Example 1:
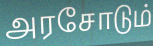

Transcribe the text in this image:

அரசோடும்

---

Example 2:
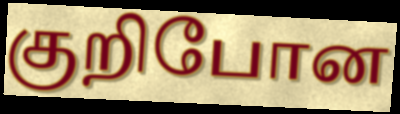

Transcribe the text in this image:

குறிபோன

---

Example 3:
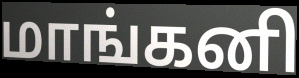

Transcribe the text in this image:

மாங்கனி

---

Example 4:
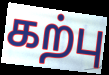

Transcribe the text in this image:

கற்பு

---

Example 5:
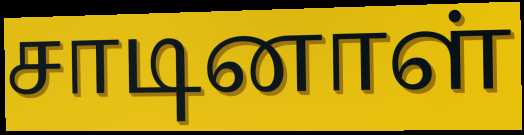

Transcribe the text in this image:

சாடினாள்